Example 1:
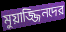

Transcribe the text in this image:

মুয়াজ্জিনদের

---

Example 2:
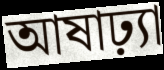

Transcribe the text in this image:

আষাঢ়্যা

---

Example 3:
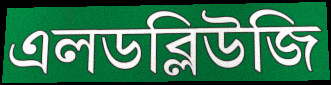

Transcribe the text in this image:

এলডব্লিউজি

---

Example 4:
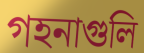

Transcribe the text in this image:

গহনাগুলি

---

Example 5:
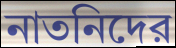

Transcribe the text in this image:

নাতনিদের